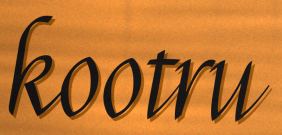
kootru